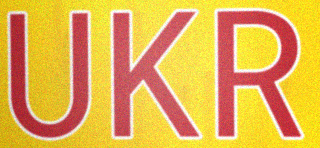
UKR